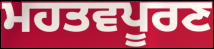
ਮਹਤਵਪੂਰਣ